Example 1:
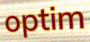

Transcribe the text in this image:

optim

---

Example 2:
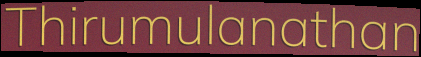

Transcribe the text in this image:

Thirumulanathan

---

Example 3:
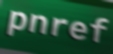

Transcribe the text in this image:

pnref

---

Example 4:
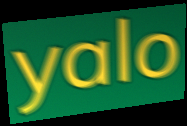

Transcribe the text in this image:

yalo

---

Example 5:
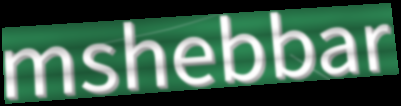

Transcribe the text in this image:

mshebbar